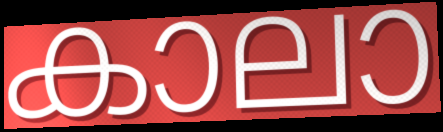
കാലാ